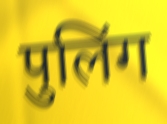
पुलिंग